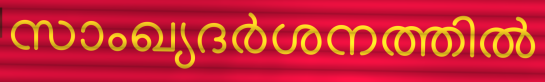
സാംഖ്യദർശനത്തിൽ